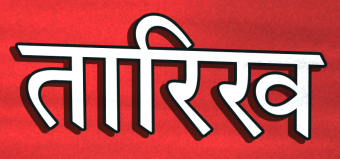
तारिख